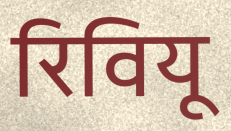
रिवियू